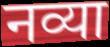
नव्‍या